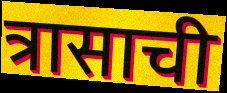
त्रासाची